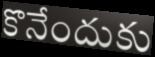
కొనేందుకు